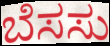
ಬೆಸಸು